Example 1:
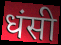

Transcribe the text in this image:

धंसी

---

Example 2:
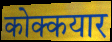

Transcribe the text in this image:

कोक्कयार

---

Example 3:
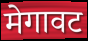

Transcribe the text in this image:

मेगावट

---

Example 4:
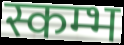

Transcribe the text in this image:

स्कम्भ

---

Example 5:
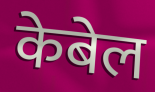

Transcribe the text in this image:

केबेल